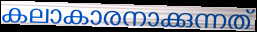
കലാകാരനാക്കുന്നത്